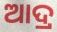
ଆଦ୍ର